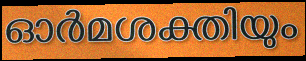
ഓർമശക്തിയും